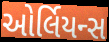
ઓર્લિયન્સ